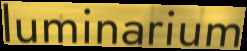
luminarium